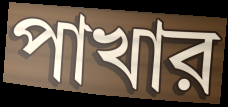
পাখার